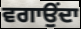
ਵਗਾਉਂਦਾ